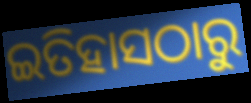
ଇତିହାସଠାରୁ